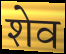
शेव